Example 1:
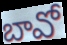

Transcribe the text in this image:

బావో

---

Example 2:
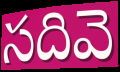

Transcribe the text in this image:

సదివె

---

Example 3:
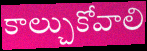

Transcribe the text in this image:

కాల్చుకోవాలి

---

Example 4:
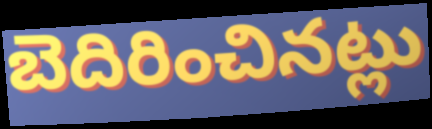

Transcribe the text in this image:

బెదిరించినట్లు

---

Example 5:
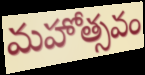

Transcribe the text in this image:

మహోత్సవం